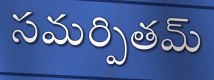
సమర్పితమ్